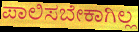
ಪಾಲಿಸಬೇಕಾಗಿಲ್ಲ